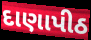
દાણાપીઠ